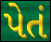
પેતં